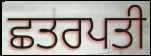
ਛਤਰਪਤੀ